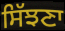
ਸਿੱਝਣਾ